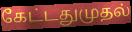
கேட்டதுமுதல்